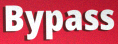
Bypass